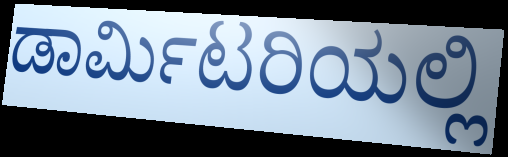
ಡಾರ್ಮಿಟರಿಯಲ್ಲಿ